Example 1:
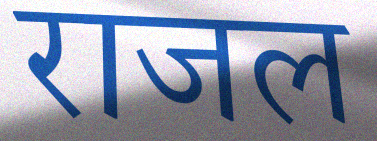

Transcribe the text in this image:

राजल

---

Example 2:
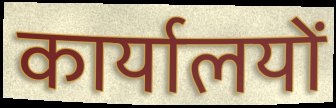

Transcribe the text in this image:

कार्यालयों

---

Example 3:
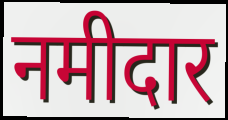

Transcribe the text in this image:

नमीदार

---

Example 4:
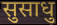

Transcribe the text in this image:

सुसाधु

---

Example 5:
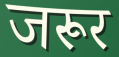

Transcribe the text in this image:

जरूर